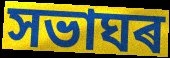
সভাঘৰ